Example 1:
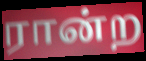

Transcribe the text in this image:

ரான்ற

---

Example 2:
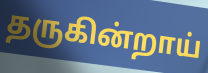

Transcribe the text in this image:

தருகின்றாய்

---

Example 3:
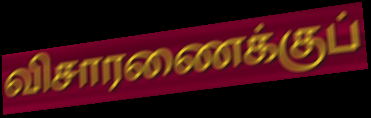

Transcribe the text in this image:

விசாரணைக்குப்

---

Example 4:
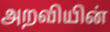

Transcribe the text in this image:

அறவியின்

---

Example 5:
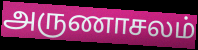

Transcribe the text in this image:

அருணாசலம்